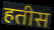
हतीस